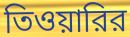
তিওয়ারির